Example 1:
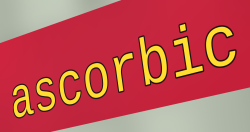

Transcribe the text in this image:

ascorbic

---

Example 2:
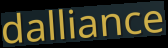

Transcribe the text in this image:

dalliance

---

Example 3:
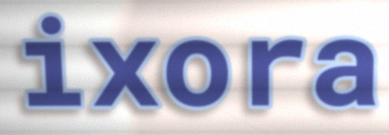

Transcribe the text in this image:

ixora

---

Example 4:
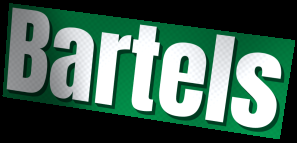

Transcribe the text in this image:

Bartels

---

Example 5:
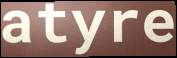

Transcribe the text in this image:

atyre